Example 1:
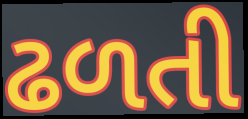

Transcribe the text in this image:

ઢળતી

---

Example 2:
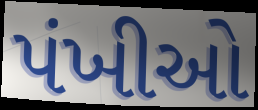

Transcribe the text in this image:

પંખીઓ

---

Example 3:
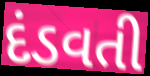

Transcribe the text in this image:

દંડવતી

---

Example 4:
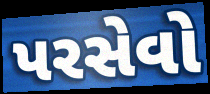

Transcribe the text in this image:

પરસેવો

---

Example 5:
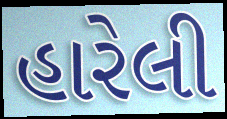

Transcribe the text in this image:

હારેલી